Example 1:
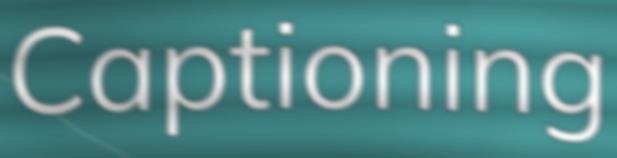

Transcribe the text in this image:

Captioning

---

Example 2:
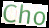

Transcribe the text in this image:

Cho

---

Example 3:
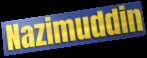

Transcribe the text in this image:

Nazimuddin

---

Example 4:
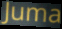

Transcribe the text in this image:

Juma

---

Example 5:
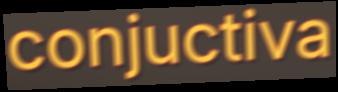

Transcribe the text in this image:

conjuctiva